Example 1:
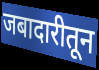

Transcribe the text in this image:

जबादारीतून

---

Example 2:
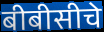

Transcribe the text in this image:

बीबीसीचे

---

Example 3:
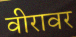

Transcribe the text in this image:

वीरावर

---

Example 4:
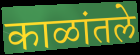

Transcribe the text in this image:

काळांतले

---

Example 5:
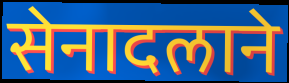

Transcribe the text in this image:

सेनादलाने